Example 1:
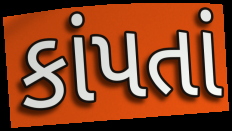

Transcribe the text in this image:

કાંપતાં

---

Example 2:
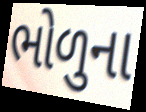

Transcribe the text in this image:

ભોળુના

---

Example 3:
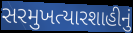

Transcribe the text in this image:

સરમુખત્યારશાહીનું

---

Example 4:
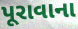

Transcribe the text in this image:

પૂરાવાના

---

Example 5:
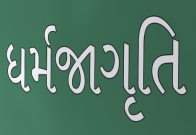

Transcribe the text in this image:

ધર્મજાગૃતિ